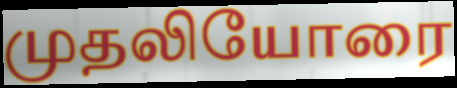
முதலியோரை